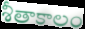
శీతాకాలం